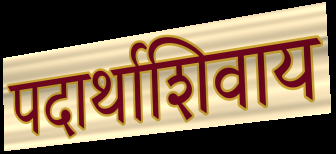
पदार्थाशिवाय